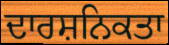
ਦਾਰਸ਼ਨਿਕਤਾ